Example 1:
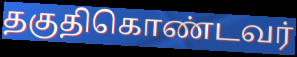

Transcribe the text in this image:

தகுதிகொண்டவர்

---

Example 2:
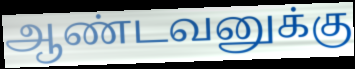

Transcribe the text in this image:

ஆண்டவனுக்கு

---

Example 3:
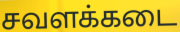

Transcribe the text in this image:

சவளக்கடை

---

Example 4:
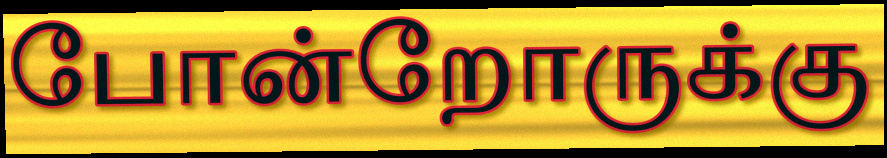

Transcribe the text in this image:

போன்றோருக்கு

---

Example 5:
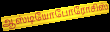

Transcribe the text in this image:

ஆஸ்டியோபோரோசிஸ்